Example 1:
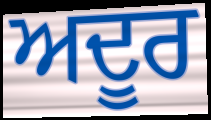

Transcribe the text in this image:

ਅਦੂਰ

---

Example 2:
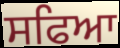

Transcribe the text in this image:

ਸਫਿਆ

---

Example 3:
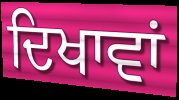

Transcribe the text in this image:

ਦਿਖਾਵਾਂ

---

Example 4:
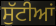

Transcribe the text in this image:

ਸੁੱਟੀਆਂ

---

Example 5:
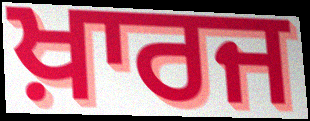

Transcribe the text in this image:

ਖ਼ਾਰਜ